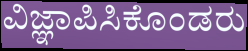
ವಿಜ್ಞಾಪಿಸಿಕೊಂಡರು